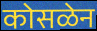
कोसळेन